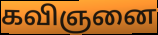
கவிஞனை